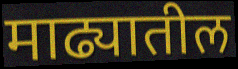
माढ्यातील